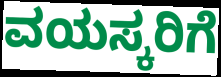
ವಯಸ್ಕರಿಗೆ